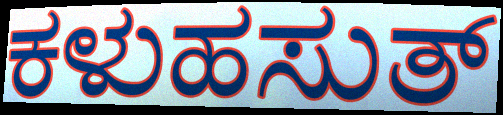
ಕಳುಹಸುತ್